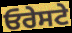
ਓਰੇਸਟੇ